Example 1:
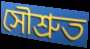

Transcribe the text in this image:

সৌশ্ৰুত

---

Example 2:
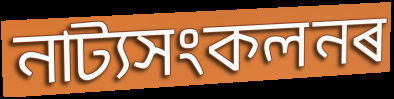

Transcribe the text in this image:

নাট্যসংকলনৰ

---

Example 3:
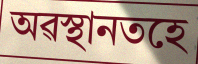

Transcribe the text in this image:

অৱস্থানতহে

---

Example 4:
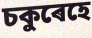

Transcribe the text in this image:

চকুৰেহে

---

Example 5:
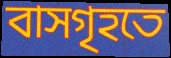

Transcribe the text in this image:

বাসগৃহতে